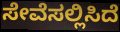
ಸೇವೆಸಲ್ಲಿಸಿದೆ